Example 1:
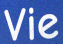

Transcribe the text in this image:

Vie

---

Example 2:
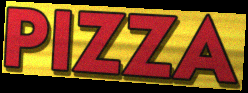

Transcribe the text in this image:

PIZZA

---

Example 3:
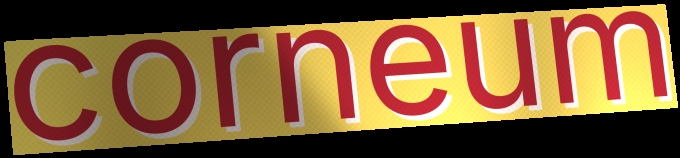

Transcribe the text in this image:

corneum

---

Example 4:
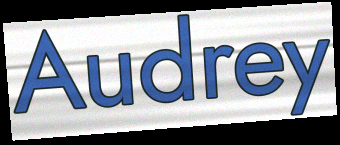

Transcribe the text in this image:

Audrey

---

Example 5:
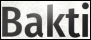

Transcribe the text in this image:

Bakti